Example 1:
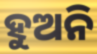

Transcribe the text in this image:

ହୁଅନି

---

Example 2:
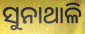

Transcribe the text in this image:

ସୁନାଥାଳି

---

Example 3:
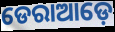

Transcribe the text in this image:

ଡେରାଆଡ଼େ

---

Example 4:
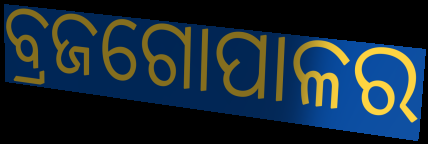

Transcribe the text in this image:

ବ୍ରଜଗୋପାଳର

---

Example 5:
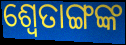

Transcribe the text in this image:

ଶ୍ବେତାଙ୍ଗଙ୍କ